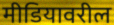
मीडियावरील